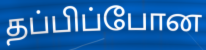
தப்பிப்போன